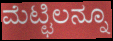
ಮೆಟ್ಟಿಲನ್ನೂ